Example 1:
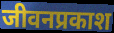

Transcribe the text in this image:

जीवनप्रकाश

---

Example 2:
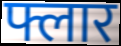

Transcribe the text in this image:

फ्लार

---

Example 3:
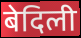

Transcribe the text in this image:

बेदिली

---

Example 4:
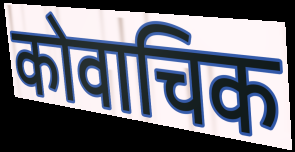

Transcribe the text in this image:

कोवाचिक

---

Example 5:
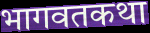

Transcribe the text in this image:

भागवतकथा